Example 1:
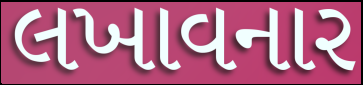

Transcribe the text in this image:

લખાવનાર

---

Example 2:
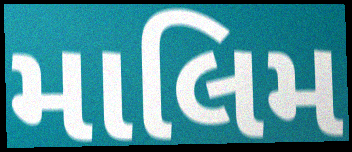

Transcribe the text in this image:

માલિમ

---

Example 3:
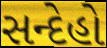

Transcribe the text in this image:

સન્દેહો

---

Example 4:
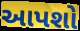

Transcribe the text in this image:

આપશો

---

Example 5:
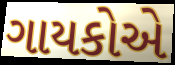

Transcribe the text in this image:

ગાયકોએ